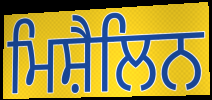
ਮਿਸ਼ੈਲਿਨ